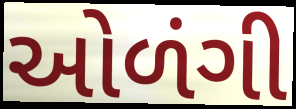
ઓળંગી